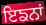
ਇਙਨਾਂ